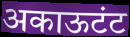
अकाऊटंट